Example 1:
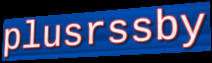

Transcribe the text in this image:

plusrssby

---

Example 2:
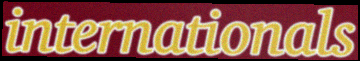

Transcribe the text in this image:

internationals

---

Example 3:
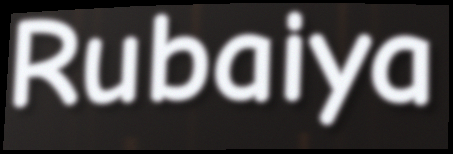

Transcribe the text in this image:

Rubaiya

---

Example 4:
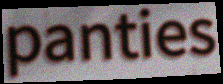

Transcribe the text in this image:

panties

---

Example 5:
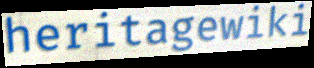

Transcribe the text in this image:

heritagewiki